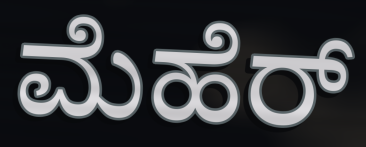
ಮೆಹೆರ್